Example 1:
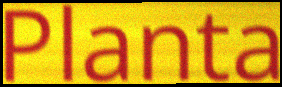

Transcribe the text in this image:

Planta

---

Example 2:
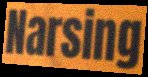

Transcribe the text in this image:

Narsing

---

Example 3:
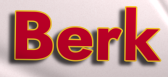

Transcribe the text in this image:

Berk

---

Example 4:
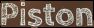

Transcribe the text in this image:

Piston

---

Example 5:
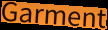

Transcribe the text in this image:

Garment